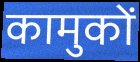
कामुकों